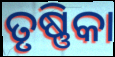
ତୃଷ୍ଣିକା